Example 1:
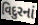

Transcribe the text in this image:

વિદુરનાં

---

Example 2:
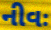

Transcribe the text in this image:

નીવઃ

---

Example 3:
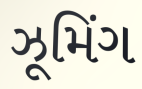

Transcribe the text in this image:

ઝૂમિંગ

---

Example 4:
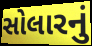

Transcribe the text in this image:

સોલારનું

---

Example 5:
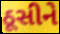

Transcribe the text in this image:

ઠૂસીને